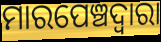
ମାରପେଞ୍ଚଦ୍ବାରା